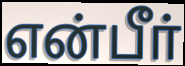
என்பீர்